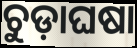
ଚୁଡ଼ାଘଷା